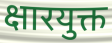
क्षारयुक्त